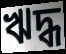
ঋদ্ধ